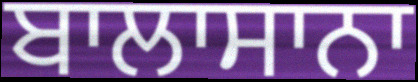
ਬਾਲਾਸਾਨਾ